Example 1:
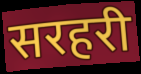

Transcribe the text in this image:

सरहरी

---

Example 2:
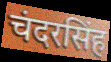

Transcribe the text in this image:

चंदरसिंह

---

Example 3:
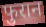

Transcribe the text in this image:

फुरान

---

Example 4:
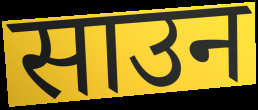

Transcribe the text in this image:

साउन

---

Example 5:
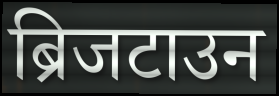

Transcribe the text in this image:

ब्रिजटाउन